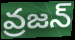
వ్రజన్